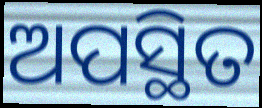
ଅପସ୍ଥିତ